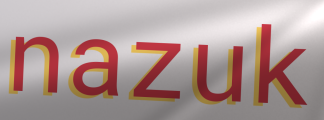
nazuk